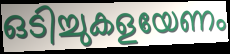
ഒടിച്ചുകളയേണം